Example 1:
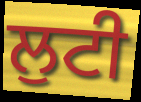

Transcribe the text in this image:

ਲੁਟੀ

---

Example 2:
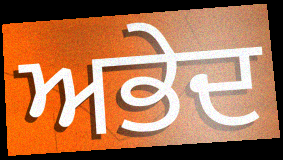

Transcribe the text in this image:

ਅਭੇਦ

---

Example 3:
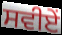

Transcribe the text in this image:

ਸਵੀਏਂ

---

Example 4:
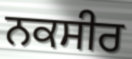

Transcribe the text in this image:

ਨਕਸੀਰ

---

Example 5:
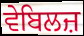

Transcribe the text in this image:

ਵੇਬਿਲਜ਼